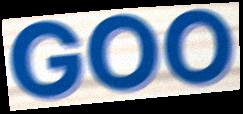
GOO